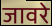
जावरे